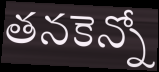
తనకెన్నో